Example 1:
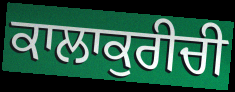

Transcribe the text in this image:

ਕਾਲਾਕੁਰੀਚੀ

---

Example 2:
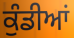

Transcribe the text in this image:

ਕੁੰਡੀਆਂ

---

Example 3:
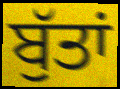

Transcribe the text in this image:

ਬੁੱਤਾਂ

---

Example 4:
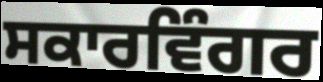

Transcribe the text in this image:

ਸਕਾਰਵਿੰਗਰ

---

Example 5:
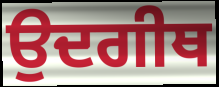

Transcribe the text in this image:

ਉਦਗੀਥ